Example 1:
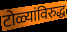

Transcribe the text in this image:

टोळ्यांविरुद्ध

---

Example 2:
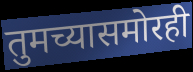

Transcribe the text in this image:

तुमच्यासमोरही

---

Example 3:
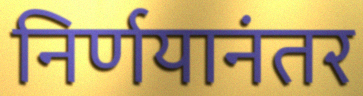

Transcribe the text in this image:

निर्णयानंतर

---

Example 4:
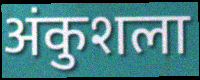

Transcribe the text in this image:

अंकुशला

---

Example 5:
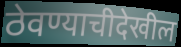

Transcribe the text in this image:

ठेवण्याचीदेखील